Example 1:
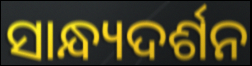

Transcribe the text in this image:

ସାନ୍ଧ୍ୟଦର୍ଶନ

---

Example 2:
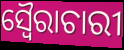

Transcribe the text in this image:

ସ୍ୱୈରାଚାରୀ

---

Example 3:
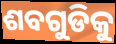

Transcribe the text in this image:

ଶବଗୁଡିକୁ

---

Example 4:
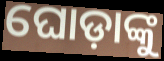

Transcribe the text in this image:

ଘୋଡ଼ାଙ୍କୁ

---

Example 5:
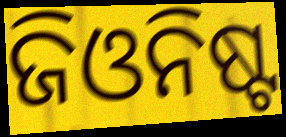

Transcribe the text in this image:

ଜିଓନିଷ୍ଟ